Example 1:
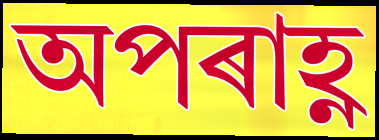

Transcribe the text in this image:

অপৰাহ্ণ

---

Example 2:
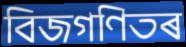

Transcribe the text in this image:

বিজগণিতৰ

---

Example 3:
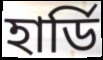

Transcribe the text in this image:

হাৰ্ডি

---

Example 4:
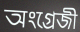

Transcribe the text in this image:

অংগ্ৰেজী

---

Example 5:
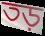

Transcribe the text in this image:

তড়